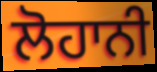
ਲੋਹਾਨੀ